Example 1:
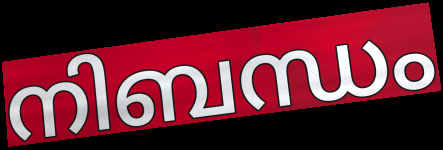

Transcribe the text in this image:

നിബന്ധം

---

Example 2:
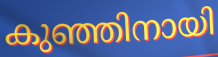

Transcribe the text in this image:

കുഞ്ഞിനായി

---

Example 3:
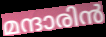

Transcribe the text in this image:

മന്ദാരിൻ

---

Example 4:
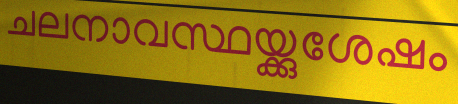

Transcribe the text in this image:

ചലനാവസ്ഥയ്ക്കുശേഷം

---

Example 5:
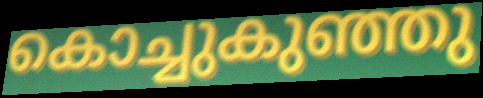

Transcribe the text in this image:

കൊച്ചുകുഞ്ഞു